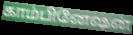
காம்பினேஷன்